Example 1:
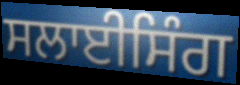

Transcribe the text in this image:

ਸਲਾਈਸਿੰਗ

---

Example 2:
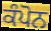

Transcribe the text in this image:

ਕੰਪੋਨ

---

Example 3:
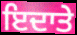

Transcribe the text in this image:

ਇਦਾਤੇ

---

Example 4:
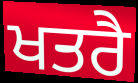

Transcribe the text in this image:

ਖਤਰੈ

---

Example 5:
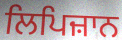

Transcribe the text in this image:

ਲਿਪਿਜ਼ਾਨ